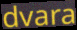
dvara